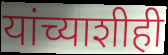
यांच्याशीही